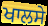
ਖਾਲਸੇ